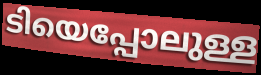
ടിയെപ്പോലുള്ള